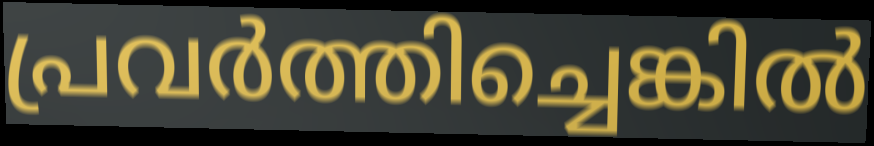
പ്രവർത്തിച്ചെങ്കിൽ